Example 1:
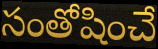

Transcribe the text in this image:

సంతోషించే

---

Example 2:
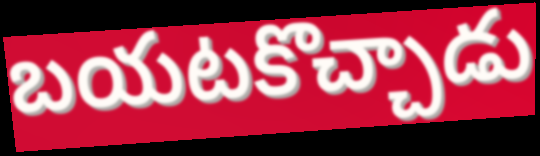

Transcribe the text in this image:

బయటకొచ్చాడు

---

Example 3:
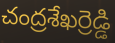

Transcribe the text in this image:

చంద్రశేఖర్రెడ్డి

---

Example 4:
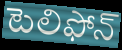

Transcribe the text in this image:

టెలిఫోన్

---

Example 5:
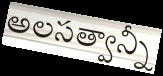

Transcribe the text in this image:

అలసత్వాన్నీ